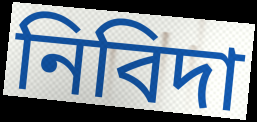
নিবিদা